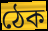
ঠেক